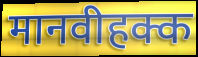
मानवीहक्क